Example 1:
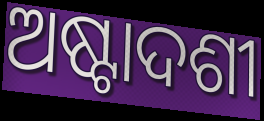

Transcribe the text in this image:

ଅଷ୍ଟାଦଶୀ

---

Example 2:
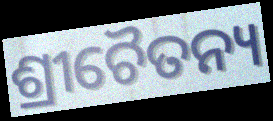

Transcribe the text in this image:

ଶ୍ରୀଚୈତନ୍ୟ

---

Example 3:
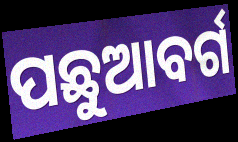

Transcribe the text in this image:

ପଛୁଆବର୍ଗ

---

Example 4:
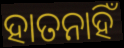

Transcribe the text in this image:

ହାତନାହିଁ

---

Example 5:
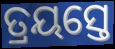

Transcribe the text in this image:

ତ୍ରୟସ୍ତେ